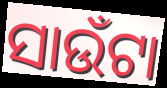
ସାଉଁଟା